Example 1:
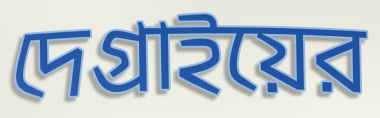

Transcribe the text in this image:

দেগ্রাইয়ের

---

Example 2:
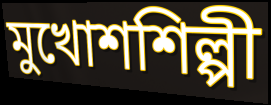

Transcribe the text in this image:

মুখোশশিল্পী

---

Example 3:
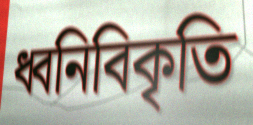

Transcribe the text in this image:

ধ্বনিবিকৃতি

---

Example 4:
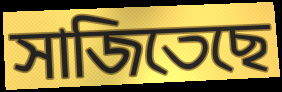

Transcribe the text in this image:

সাজিতেছে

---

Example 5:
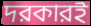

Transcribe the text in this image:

দরকারই